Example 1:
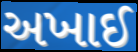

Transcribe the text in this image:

અખાઈ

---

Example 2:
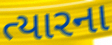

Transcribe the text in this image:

ત્યારના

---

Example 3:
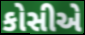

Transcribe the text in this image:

કોસીએ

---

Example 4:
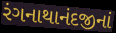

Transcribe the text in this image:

રંગનાથાનંદજીનાં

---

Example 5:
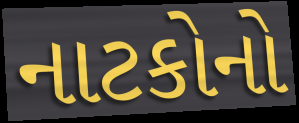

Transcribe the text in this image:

નાટકોનો